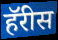
हॅरीस